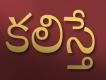
కలిస్తే